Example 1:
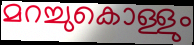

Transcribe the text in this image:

മറച്ചുകൊള്ളും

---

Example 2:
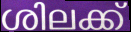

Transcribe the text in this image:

ശിലക്ക്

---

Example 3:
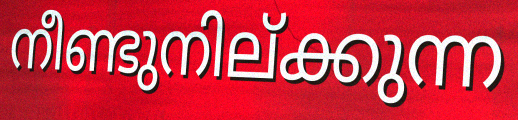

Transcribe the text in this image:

നീണ്ടുനില്ക്കുന്ന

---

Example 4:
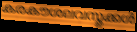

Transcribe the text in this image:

കരകൗശലവസ്തുക്കൾ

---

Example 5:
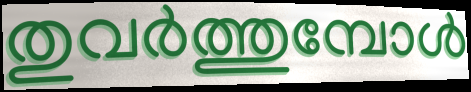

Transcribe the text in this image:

തുവർത്തുമ്പോൾ